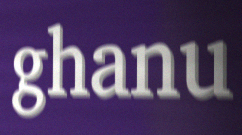
ghanu